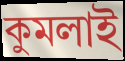
কুমলাই